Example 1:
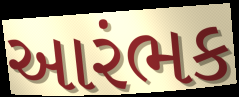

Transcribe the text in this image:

આરંભક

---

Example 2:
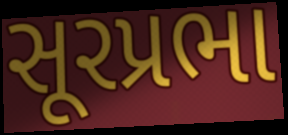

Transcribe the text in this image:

સૂરપ્રભા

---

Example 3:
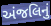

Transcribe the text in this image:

અંજલિનું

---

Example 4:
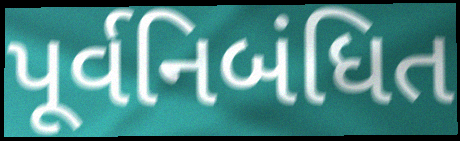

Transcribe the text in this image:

પૂર્વનિબંધિત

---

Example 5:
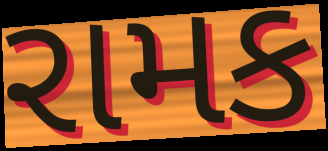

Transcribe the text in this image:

રામક